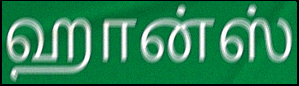
ஹான்ஸ்